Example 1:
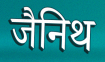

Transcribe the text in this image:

जैनिथ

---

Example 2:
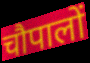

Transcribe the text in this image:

चौपालों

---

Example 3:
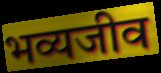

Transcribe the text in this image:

भव्यजीव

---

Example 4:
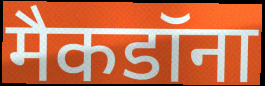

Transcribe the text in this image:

मैकडॉना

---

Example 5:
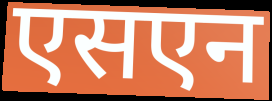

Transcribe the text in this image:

एसएन